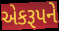
એકરૂપને